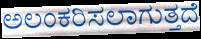
ಅಲಂಕರಿಸಲಾಗುತ್ತದೆ